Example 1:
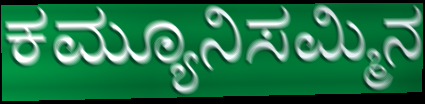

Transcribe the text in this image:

ಕಮ್ಯೂನಿಸಮ್ಮಿನ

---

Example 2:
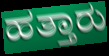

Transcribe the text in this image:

ಹತ್ತಾರು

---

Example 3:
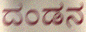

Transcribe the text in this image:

ದಂಡನ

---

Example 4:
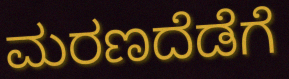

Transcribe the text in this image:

ಮರಣದೆಡೆಗೆ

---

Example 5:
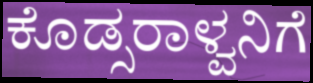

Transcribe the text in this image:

ಕೊಡ್ಸರಾಳ್ವನಿಗೆ